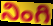
నింగి